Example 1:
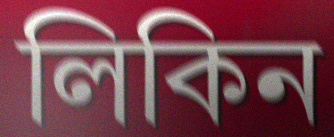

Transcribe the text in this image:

লিকিন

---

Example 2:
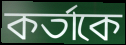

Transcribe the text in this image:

কর্তাকে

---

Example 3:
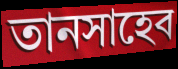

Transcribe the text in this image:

তানসাহেব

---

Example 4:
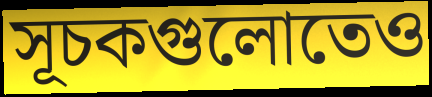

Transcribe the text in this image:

সূচকগুলোতেও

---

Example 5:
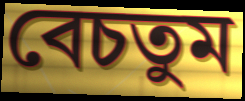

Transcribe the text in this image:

বেচতুম